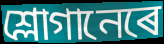
শ্লোগানেৰে